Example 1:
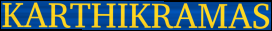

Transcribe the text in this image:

KARTHIKRAMAS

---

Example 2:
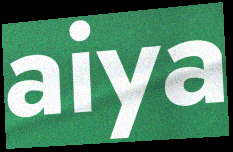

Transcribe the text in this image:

aiya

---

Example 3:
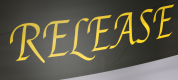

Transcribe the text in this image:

RELEASE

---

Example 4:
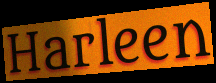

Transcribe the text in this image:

Harleen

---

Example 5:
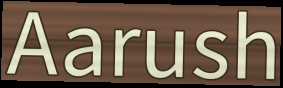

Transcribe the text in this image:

Aarush